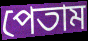
পেতাম